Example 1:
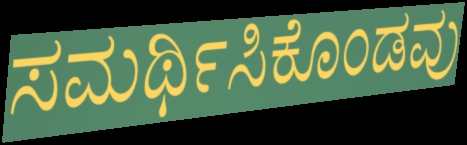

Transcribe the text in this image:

ಸಮರ್ಥಿಸಿಕೊಂಡವು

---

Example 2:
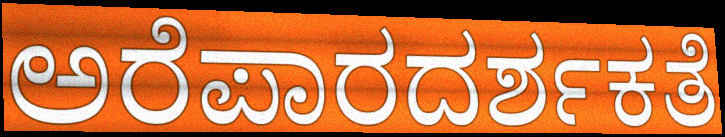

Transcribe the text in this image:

ಅರೆಪಾರದರ್ಶಕತೆ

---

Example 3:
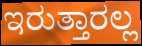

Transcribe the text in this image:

ಇರುತ್ತಾರಲ್ಲ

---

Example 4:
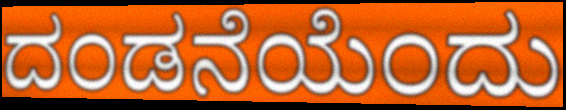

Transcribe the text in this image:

ದಂಡನೆಯೆಂದು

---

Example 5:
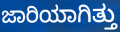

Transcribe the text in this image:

ಜಾರಿಯಾಗಿತ್ತು